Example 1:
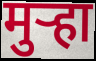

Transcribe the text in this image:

मुऱ्हा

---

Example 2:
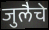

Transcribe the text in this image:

जुलैचे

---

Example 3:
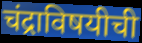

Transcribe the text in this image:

चंद्राविषयीची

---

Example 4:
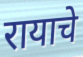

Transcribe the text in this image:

रायाचे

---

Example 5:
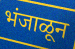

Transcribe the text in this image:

भंजाळून